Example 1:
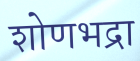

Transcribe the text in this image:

शोणभद्रा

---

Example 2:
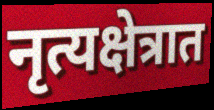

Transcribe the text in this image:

नृत्यक्षेत्रात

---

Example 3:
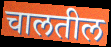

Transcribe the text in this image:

चालतील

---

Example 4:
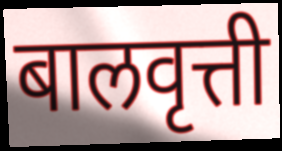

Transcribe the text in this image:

बालवृत्ती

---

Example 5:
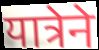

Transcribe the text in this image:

यात्रेने